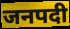
जनपदी